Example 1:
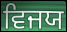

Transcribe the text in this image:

ਵਿਜਯ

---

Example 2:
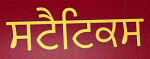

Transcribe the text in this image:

ਸਟੈਟਿਕਸ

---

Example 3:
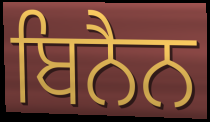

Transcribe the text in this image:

ਬਿਨੈਨ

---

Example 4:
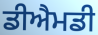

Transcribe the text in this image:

ਡੀਐਮਡੀ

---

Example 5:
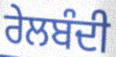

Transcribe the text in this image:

ਰੇਲਬੰਦੀ